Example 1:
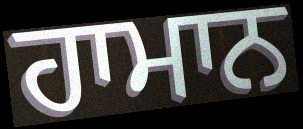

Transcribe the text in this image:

ਹਾਮਾਨ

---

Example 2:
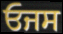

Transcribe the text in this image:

ਓਜਸ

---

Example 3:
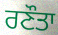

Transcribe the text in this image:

ਰਣੌਤਾ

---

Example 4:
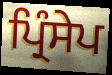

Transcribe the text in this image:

ਪ੍ਰਿੰਸੇਪ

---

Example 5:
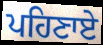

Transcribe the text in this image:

ਪਹਿਣਾਏ